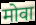
मोवा